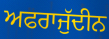
ਅਫਰਾਜੁੱਦੀਨ